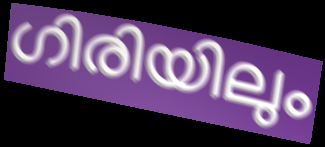
ഗിരിയിലും